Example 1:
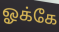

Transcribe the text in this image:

ஓக்கே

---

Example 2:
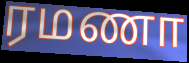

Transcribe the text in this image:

ரமணா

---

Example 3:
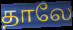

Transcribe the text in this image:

தாலே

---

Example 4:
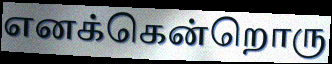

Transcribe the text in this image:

எனக்கென்றொரு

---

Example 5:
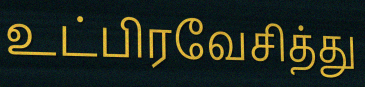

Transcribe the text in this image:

உட்பிரவேசித்து